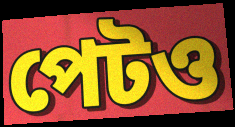
পেটও